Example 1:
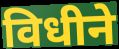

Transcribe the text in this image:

विधीने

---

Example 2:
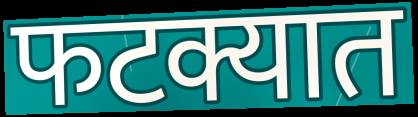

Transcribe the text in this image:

फटक्यात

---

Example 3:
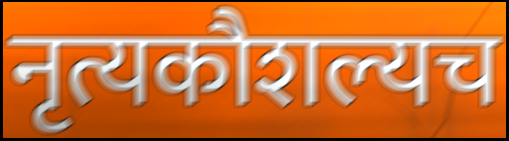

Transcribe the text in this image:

नृत्यकौशल्यच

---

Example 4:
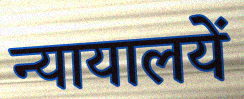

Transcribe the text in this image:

न्यायालयें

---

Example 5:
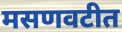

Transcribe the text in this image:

मसणवटीत